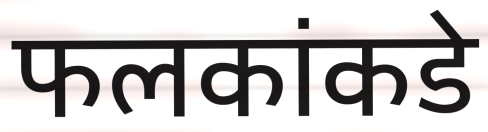
फलकांकडे